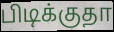
பிடிக்குதா